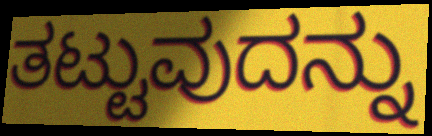
ತಟ್ಟುವುದನ್ನು